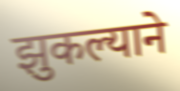
झुकल्याने